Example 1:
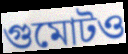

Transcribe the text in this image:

গুমোটও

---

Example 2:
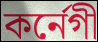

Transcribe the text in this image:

কর্নেগী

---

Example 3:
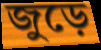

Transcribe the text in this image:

জুড়ে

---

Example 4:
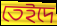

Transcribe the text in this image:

তেইদে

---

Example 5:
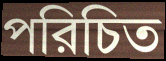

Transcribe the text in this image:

পরিচিত